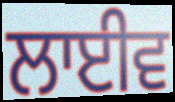
ਲਾਈਵ